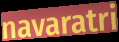
navaratri